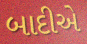
બાદીએ